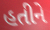
હતીને